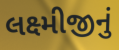
લક્ષ્મીજીનું